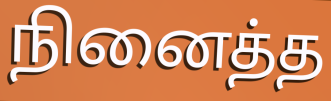
நினைத்த